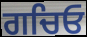
ਗਚਿਓ